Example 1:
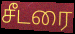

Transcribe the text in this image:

சீடரை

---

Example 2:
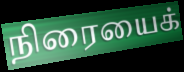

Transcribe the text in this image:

நிரையைக்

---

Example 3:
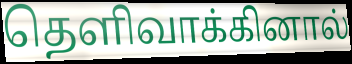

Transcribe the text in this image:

தெளிவாக்கினால்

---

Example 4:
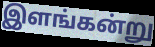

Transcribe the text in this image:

இளங்கன்று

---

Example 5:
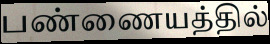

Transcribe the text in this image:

பண்ணையத்தில்